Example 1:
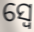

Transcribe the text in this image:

ସ୍ୱେ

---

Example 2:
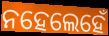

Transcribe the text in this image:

ନହେଲେହେଁ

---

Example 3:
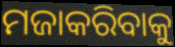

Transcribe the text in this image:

ମଜାକରିବାକୁ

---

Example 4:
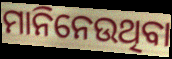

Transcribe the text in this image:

ମାନିନେଉଥିବା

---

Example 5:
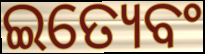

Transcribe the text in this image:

ଇତ୍ୟେବଂ